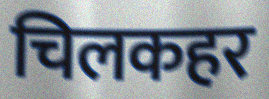
चिलकहर